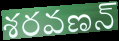
శరవణన్